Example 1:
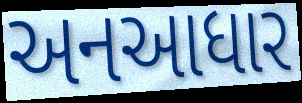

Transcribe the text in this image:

અનઆધાર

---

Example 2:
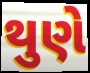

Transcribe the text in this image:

થુણે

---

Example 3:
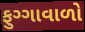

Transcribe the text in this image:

ફુગ્ગાવાળો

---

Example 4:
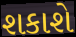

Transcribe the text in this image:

શકાશે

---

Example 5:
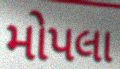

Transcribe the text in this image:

મોપલા